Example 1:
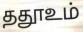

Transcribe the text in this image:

ததூஉம்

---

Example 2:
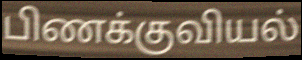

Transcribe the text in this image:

பிணக்குவியல்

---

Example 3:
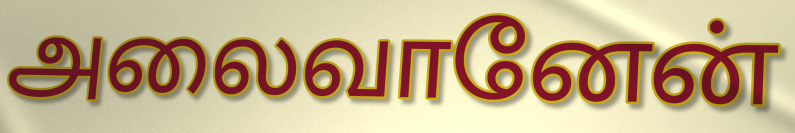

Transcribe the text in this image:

அலைவானேன்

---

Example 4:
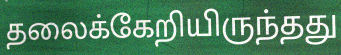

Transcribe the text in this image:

தலைக்கேறியிருந்தது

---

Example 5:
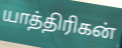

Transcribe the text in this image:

யாத்திரிகன்